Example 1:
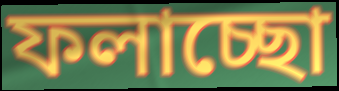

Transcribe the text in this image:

ফলাচ্ছো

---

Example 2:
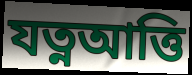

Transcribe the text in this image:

যত্নআত্তি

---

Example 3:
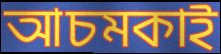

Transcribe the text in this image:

আচমকাই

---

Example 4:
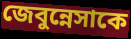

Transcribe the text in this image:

জেবুন্নেসাকে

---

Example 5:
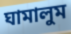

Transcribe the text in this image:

ঘামালুম